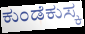
ಕುಂಡೆಕುಸ್ಕ